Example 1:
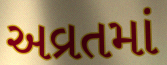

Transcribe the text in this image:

અવ્રતમાં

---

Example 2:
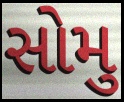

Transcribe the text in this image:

સોમુ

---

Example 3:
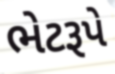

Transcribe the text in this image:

ભેટરૂપે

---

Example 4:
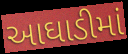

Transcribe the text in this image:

આઘાડીમાં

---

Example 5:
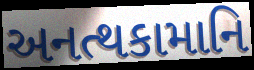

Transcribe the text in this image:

અનત્થકામાનિ